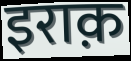
इराक़